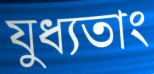
যুধ্যতাং